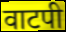
वाटपी